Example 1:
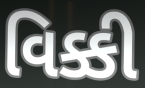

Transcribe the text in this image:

વિક્કી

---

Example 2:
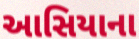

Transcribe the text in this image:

આસિયાના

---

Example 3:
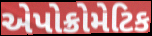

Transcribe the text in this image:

એપોક્રોમેટિક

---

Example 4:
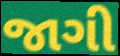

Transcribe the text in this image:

જાગી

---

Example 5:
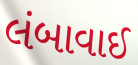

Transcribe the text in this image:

લંબાવાઈ